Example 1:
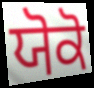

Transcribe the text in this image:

ਯੋਕੋ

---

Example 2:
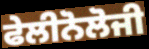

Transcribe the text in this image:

ਫੇਲੀਨੋਲੋਜੀ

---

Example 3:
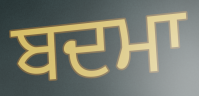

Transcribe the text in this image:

ਬਦਮਾ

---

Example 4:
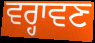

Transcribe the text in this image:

ਵਰ੍ਹਾਵਣ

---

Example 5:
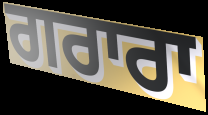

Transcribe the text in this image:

ਗਰਾਰਾ